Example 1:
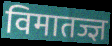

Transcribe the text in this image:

विमातज्ज्ञ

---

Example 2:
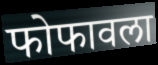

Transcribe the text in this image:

फोफावला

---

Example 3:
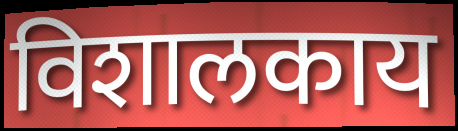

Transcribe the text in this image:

विशालकाय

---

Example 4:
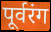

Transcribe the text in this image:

पूर्वरंग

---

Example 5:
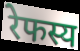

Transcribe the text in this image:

रेफस्य